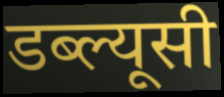
डब्ल्यूसी